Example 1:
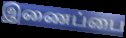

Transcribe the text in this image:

இணைப்பை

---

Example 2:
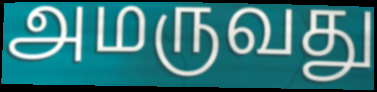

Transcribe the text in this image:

அமருவது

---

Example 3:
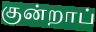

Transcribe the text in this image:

குன்றாப்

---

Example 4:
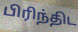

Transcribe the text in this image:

பிரிந்திட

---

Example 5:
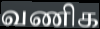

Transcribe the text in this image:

வணிக